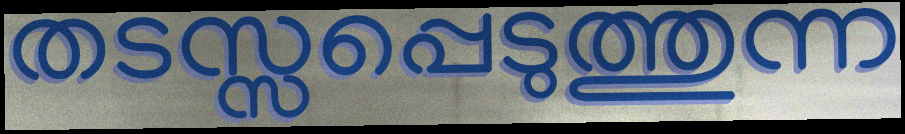
തടസ്സപ്പെടുത്തുന്ന